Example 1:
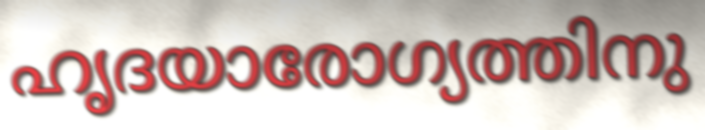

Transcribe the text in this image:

ഹൃദയാരോഗ്യത്തിനു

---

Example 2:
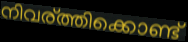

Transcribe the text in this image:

നിവര്ത്തിക്കൊണ്ട്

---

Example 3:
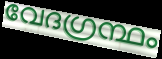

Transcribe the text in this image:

വേദഗ്രന്ഥം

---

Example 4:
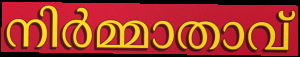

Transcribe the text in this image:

നിർമ്മാതാവ്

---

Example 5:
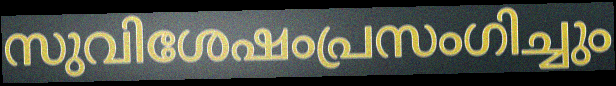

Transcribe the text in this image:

സുവിശേഷംപ്രസംഗിച്ചും